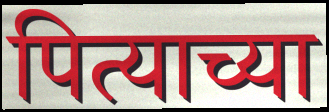
पित्याच्या